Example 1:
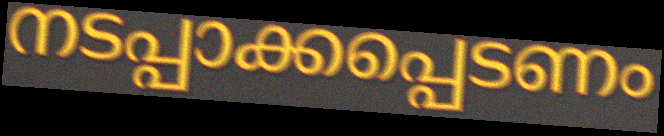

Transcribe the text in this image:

നടപ്പാക്കപ്പെടണം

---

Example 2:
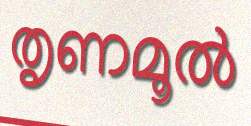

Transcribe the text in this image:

തൃണമൂൽ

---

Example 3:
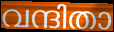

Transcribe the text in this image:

വന്ദിതാ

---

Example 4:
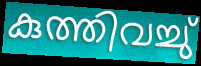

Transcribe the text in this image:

കുത്തിവച്ചു്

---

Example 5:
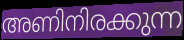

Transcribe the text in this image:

അണിനിരക്കുന്ന